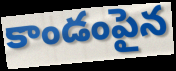
కాండంపైన